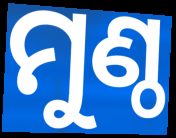
ମୁଣ୍ଠ